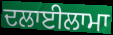
ਦਲਾਈਲਾਮਾ